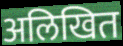
अलिखित